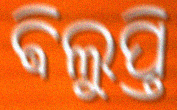
ଵିଲୁପ୍ତି